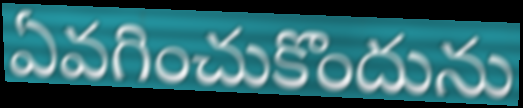
ఏవగించుకొందును